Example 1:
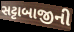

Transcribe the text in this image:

સટ્ટાબાજીની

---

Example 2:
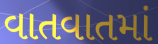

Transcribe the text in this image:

વાતવાતમાં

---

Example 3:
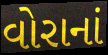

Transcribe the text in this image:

વોરાનાં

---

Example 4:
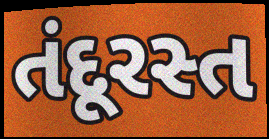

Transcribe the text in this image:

તંદૂરસ્ત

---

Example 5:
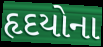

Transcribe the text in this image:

હૃદયોના